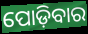
ପୋଡ଼ିବାର